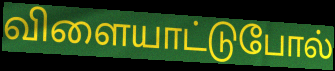
விளையாட்டுபோல்